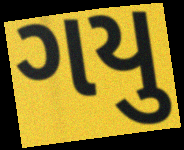
ગયુ